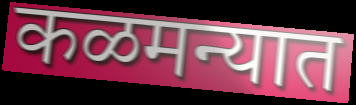
कळमन्यात